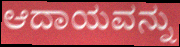
ಆದಾಯವನ್ನು